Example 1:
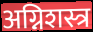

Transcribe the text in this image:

अग्निशस्त्र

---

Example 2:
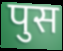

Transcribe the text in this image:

पुस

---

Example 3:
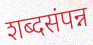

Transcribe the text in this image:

शब्दसंपन्न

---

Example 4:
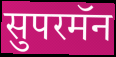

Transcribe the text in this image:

सुपरमॅन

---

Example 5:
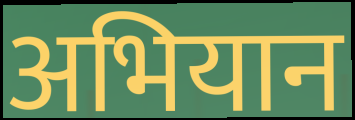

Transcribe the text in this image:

अभियान